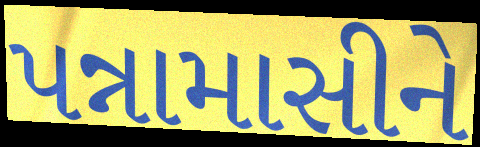
પન્નામાસીને